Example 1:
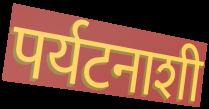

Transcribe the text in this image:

पर्यटनाशी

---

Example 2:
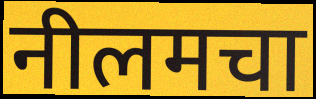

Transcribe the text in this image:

नीलमचा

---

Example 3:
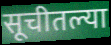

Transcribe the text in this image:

सूचीतल्या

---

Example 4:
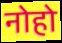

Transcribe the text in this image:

नोहो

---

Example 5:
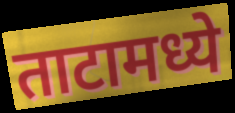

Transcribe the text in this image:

ताटामध्ये